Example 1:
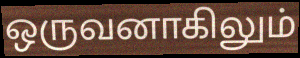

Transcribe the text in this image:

ஒருவனாகிலும்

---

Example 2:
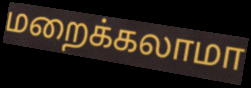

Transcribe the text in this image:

மறைக்கலாமா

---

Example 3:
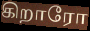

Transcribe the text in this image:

கிறாரோ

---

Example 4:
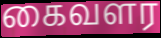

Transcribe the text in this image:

கைவளர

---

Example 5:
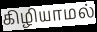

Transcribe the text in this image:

கிழியாமல்